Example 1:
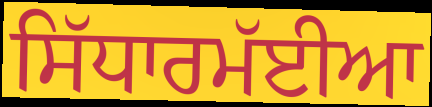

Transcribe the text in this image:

ਸਿੱਧਾਰਮੱਈਆ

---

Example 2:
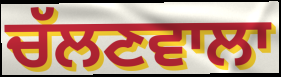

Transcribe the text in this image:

ਚੱਲਣਵਾਲਾ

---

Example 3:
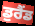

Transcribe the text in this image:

ਡੁਰੈਂਡ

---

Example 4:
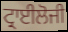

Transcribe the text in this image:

ਟ੍ਰਾਈਲੋਜੀ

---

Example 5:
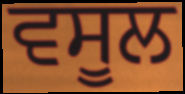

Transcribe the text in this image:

ਵਸੂਲ